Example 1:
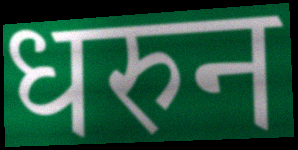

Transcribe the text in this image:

धरुन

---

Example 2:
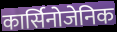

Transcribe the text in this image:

कार्सिनोजेनिक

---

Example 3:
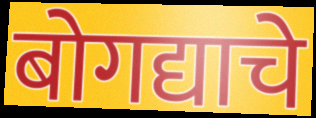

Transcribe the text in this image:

बोगद्याचे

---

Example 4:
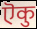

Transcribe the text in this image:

ऎकु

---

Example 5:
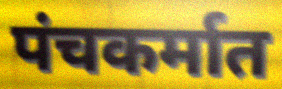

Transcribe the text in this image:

पंचकर्मात